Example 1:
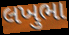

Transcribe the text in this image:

લખુભા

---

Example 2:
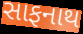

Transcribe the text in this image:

સાફનાથ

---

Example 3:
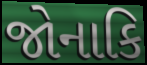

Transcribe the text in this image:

જોનાકિ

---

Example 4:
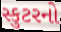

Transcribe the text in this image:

સ્કુટરનો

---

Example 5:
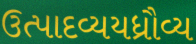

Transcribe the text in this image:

ઉત્પાદવ્યયધ્રૌવ્ય